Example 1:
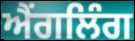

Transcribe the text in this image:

ਐਂਗਲਿੰਗ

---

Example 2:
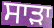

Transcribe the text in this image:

ਸਾੜਾ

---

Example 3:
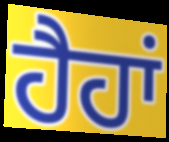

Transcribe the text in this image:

ਹੈਹਾਂ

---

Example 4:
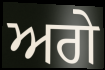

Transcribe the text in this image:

ਅਗੇ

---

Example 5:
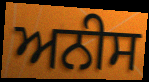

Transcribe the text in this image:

ਅਨੀਸ